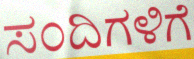
ಸಂದಿಗಳಿಗೆ